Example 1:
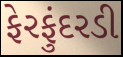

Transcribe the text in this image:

ફેરફુંદરડી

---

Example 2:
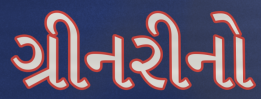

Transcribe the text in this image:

ગ્રીનરીનો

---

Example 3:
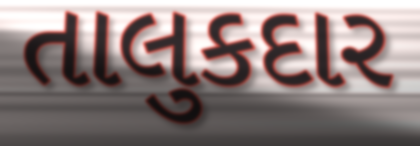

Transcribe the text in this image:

તાલુકદાર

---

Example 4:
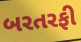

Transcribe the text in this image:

બરતરફી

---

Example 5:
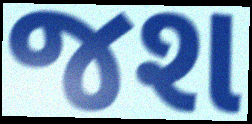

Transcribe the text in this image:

જશ